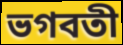
ভগবতী